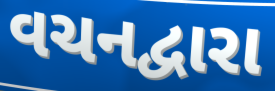
વચનદ્વારા